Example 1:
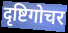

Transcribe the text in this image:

दृष्टिगोचर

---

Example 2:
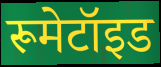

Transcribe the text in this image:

रूमेटॉइड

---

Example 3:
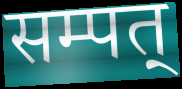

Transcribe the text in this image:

सम्पत्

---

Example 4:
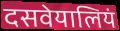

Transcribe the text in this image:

दसवेयालियं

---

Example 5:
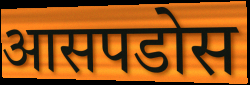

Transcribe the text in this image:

आसपडोस